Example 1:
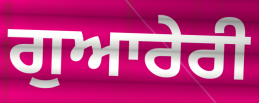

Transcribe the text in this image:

ਗੁਆਰੇਰੀ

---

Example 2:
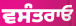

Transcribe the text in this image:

ਵਸੰਤਰਾਓ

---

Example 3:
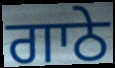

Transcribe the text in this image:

ਗਾਠੇ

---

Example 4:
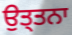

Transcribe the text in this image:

ਉਤ੍ਤਨਾ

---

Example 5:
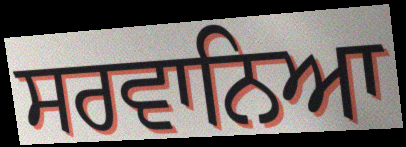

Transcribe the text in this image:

ਸਰਵਾਨਿਆ